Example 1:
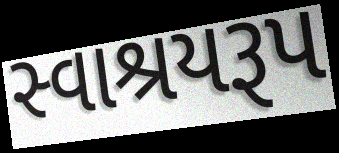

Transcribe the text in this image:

સ્વાશ્રયરૂપ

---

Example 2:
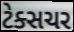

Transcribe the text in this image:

ટેક્સચર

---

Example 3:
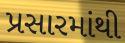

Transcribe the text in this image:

પ્રસારમાંથી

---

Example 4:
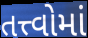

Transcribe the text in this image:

તત્ત્વોમાં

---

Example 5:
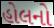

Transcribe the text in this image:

હોલનો